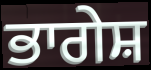
ਭਾਗੇਸ਼